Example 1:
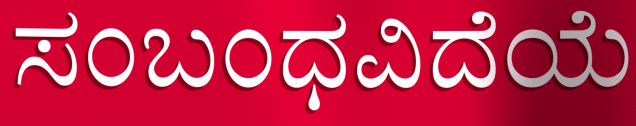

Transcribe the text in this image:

ಸಂಬಂಧವಿದೆಯೆ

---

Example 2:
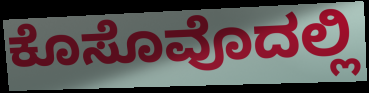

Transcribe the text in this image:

ಕೊಸೊವೊದಲ್ಲಿ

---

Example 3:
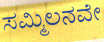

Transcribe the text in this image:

ಸಮ್ಮಿಲನವೇ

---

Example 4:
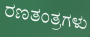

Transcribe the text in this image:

ರಣತಂತ್ರಗಳು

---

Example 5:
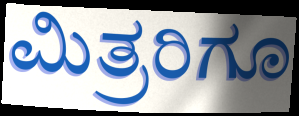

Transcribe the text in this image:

ಮಿತ್ರರಿಗೂ